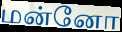
மன்னோ